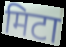
मिटा